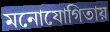
মনোযোগিতায়